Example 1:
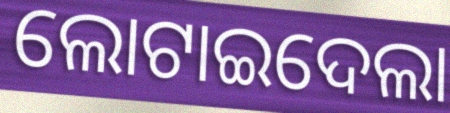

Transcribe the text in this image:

ଲୋଟାଇଦେଲା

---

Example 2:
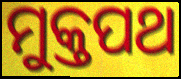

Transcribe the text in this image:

ମୁକ୍ତପଥ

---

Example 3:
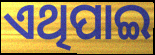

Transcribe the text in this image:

ଏଥିପାଇ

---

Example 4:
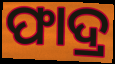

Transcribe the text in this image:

ଫାଦ୍ର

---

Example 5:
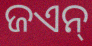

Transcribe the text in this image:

ଜଏନ୍